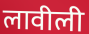
लावीली